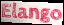
Elango